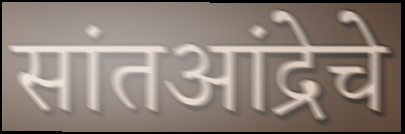
सांतआंद्रेचे